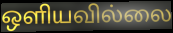
ஒளியவில்லை